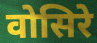
वोसिरे